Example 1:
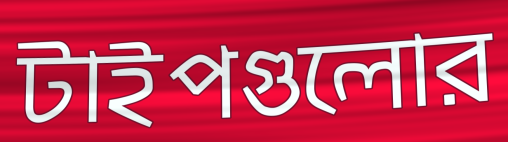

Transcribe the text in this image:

টাইপগুলোর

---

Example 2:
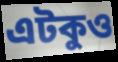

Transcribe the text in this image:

এটকুও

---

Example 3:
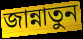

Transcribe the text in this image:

জান্নাতুন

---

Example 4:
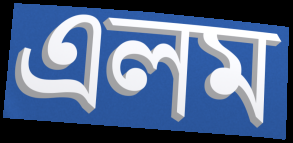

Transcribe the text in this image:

এলম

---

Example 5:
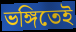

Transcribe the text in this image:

ভঙ্গিতেই